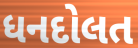
ધનદોલત